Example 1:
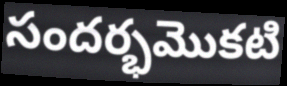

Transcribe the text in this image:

సందర్భమొకటి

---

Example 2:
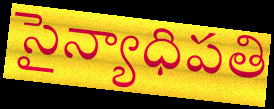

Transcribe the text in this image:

సైన్యాధిపతి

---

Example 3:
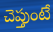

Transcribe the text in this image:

చెప్తుంటే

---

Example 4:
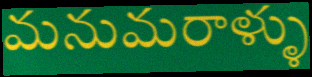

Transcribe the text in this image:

మనుమరాళ్ళు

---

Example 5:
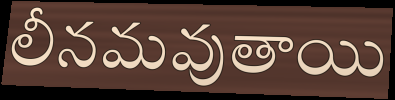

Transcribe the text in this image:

లీనమవుతాయి